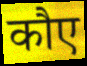
कौए